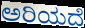
ಅರಿಯದೆ